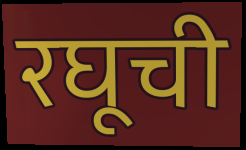
रघूची